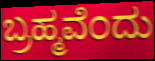
ಬ್ರಹ್ಮವೆಂದು